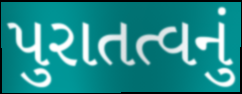
પુરાતત્વનું